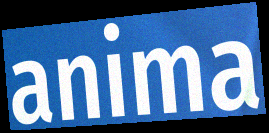
anima